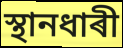
স্থানধাৰী